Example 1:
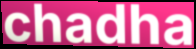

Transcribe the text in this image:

chadha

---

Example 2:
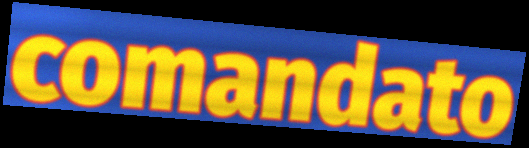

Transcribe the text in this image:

comandato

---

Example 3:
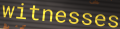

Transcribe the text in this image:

witnesses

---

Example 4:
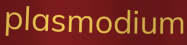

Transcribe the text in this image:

plasmodium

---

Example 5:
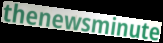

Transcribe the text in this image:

thenewsminute